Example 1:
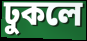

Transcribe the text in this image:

ঢুকলে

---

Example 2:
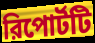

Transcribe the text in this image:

রিপোর্টটি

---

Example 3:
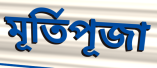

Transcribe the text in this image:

মূর্তিপূজা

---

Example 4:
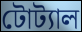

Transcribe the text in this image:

টোট্যাল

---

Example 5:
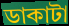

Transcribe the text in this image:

ডাকাটা